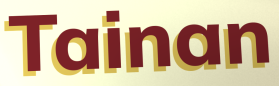
Tainan